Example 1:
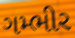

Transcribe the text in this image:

ગમ્ભીર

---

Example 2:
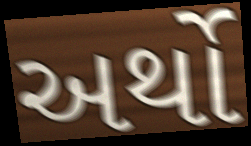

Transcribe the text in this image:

અર્થો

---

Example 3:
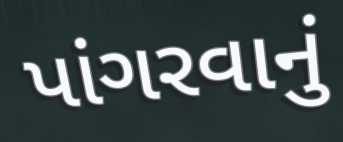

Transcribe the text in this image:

પાંગરવાનું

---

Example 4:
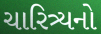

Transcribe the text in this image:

ચારિત્ર્યનો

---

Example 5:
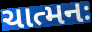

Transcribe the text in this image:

ચાત્મનઃ